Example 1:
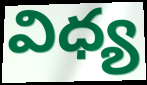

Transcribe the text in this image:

విధ్య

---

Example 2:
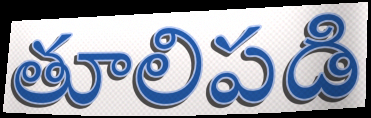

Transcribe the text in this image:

తూలిపడి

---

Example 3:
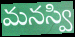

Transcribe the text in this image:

మనస్వి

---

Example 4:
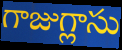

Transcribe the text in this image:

గాజుగ్లాసు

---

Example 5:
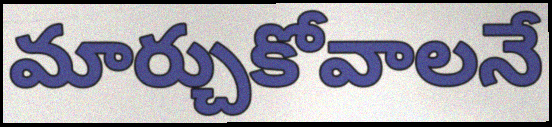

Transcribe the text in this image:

మార్చుకోవాలనే